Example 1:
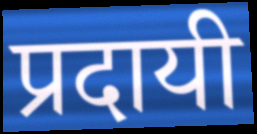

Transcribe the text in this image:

प्रदायी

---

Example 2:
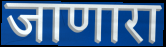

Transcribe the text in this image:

जाणारा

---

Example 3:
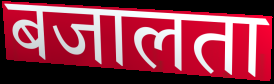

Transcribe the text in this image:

बजालता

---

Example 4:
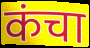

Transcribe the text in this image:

कंचा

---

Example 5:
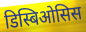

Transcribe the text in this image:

डिस्बिओसिस